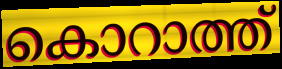
കൊറാത്ത്